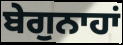
ਬੇਗੁਨਾਹਾਂ